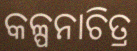
କଳ୍ପନାଚିତ୍ର